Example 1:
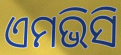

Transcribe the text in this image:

ଏମଭିସି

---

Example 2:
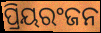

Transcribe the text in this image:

ପ୍ରିୟରଂଜନ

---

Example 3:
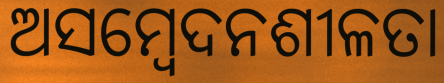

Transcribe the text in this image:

ଅସମ୍ବେଦନଶୀଳତା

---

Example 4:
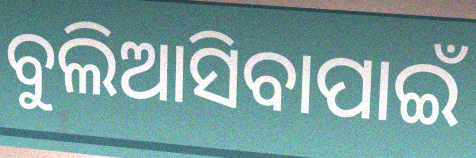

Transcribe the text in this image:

ବୁଲିଆସିବାପାଇଁ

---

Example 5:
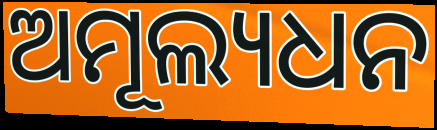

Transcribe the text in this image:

ଅମୂଲ୍ୟଧନ